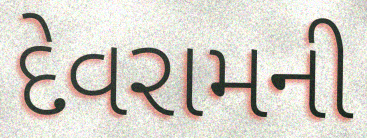
દેવરામની